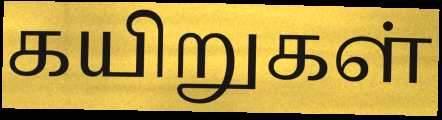
கயிறுகள்